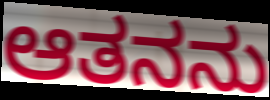
ಆತನನು